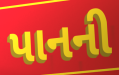
પાનની